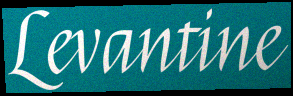
Levantine